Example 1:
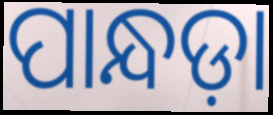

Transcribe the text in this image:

ପାନ୍ଧଡ଼ା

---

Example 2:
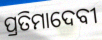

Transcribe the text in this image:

ପ୍ରତିମାଦେବୀ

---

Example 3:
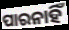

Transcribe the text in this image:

ପାରନାହିଁ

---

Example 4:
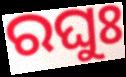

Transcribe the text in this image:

ରଘୁଃ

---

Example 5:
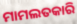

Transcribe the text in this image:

ମାମଲତକାରି